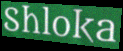
Shloka